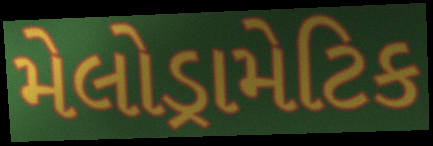
મેલોડ્રામેટિક